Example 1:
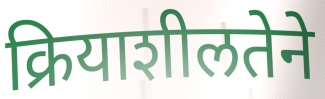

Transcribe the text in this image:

क्रियाशीलतेने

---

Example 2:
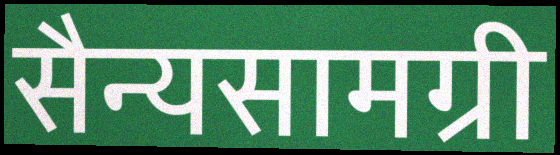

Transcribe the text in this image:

सैन्यसामग्री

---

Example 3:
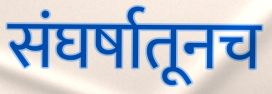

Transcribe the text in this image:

संघर्षातूनच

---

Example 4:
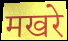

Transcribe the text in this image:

मखरे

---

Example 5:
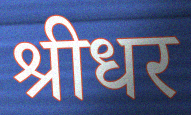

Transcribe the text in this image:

श्रीधर